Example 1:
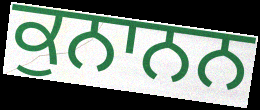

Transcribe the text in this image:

ਕੁਨਾਨਨ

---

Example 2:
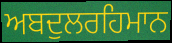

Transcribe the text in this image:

ਅਬਦੁਲਰਹਿਮਾਨ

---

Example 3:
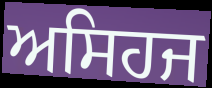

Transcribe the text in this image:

ਅਸਿਹਜ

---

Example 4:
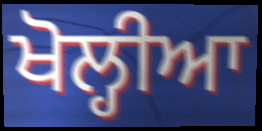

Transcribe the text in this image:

ਖੋਲ੍ਹੀਆ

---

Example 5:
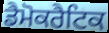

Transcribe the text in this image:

ਡੈਮੋਕਰੈਟਿਕ